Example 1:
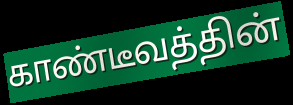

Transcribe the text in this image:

காண்டீவத்தின்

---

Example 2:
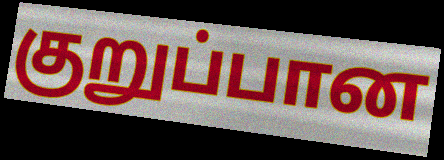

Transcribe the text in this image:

குறுப்பான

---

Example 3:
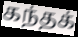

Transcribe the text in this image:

கந்தக்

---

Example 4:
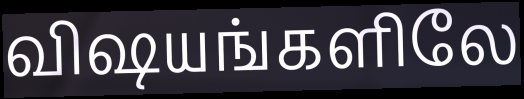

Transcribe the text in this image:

விஷயங்களிலே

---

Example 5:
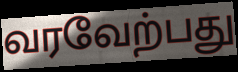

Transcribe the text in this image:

வரவேற்பது